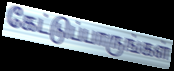
கேட்டுப்பாருங்கள்